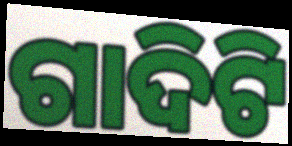
ଗାଦିଟି